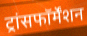
ट्रांसफॉर्मेंशन